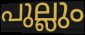
പുല്ലും